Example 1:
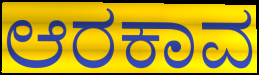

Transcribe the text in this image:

ಆರಕಾವ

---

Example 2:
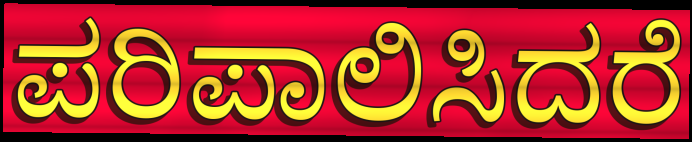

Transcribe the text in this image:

ಪರಿಪಾಲಿಸಿದರೆ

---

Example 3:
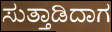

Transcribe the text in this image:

ಸುತ್ತಾಡಿದಾಗ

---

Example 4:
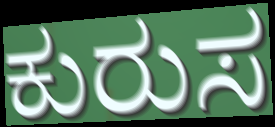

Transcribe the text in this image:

ಕುರುಸ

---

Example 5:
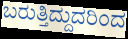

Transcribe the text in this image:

ಬರುತ್ತಿದ್ದುದರಿಂದ